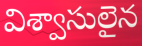
విశ్వాసులైన